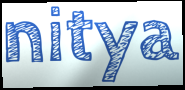
nitya